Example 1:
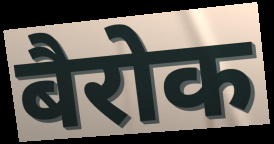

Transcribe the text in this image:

बैरोक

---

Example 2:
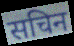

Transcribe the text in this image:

सचिन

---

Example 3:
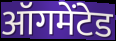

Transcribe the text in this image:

ऑगमेंटेड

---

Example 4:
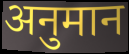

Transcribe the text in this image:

अनुमान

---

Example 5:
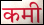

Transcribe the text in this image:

कमी